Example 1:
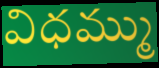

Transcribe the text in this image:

విధమ్ము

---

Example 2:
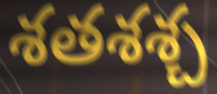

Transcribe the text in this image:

శతశశ్చ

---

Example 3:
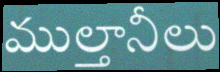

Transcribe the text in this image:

ముల్తానీలు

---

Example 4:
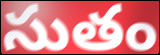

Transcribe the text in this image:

సుతం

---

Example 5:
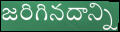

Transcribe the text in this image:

జరిగినదాన్ని